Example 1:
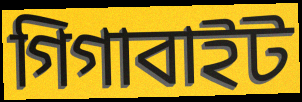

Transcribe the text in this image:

গিগাবাইট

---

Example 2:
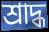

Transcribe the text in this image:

শ্ৰাদ্ধ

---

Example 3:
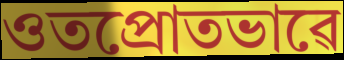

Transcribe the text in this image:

ওতপ্ৰোতভাৱে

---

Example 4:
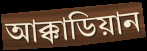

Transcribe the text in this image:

আক্কাডিয়ান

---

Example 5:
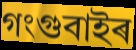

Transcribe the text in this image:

গংগুবাইৰ